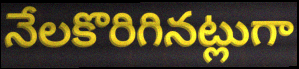
నేలకొరిగినట్లుగా